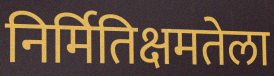
निर्मितिक्षमतेला